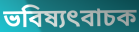
ভবিষ্যৎবাচক